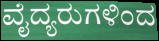
ವೈದ್ಯರುಗಳಿಂದ